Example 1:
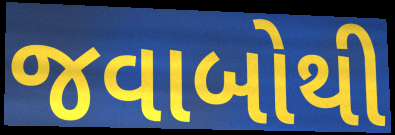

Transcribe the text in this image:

જવાબોથી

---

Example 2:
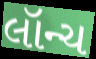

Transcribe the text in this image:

લૉન્ચ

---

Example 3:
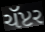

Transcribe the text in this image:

ચૅપ્ટર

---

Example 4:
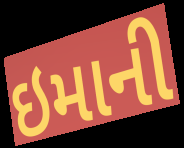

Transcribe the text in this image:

ઇમાની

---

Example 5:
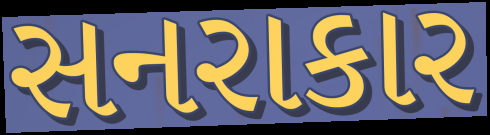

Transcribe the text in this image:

સનરાકાર